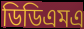
ডিডিএমএ